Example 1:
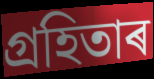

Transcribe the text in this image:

গ্ৰহিতাৰ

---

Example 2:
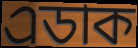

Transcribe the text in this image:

এডাক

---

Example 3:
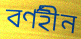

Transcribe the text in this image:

বৰ্ণহীন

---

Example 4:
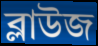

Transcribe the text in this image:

ব্লাউজ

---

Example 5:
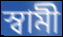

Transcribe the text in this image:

স্বামী